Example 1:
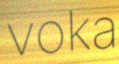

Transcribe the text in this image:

voka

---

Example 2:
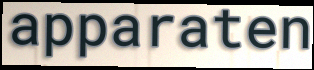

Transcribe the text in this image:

apparaten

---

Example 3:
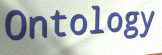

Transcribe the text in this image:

Ontology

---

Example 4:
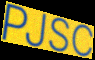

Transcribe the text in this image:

PJSC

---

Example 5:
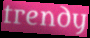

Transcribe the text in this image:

trendy